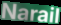
Narail